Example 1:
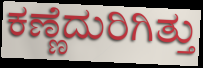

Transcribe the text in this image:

ಕಣ್ಣೆದುರಿಗಿತ್ತು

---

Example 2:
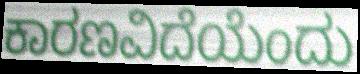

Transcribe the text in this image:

ಕಾರಣವಿದೆಯೆಂದು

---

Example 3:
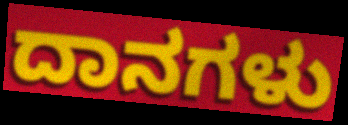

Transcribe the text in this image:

ದಾನಗಳು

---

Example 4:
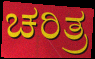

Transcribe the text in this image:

ಚರಿತ್ರ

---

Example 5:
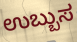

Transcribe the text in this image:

ಉಬ್ಬುಸ